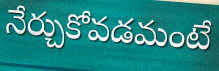
నేర్చుకోవడమంటే